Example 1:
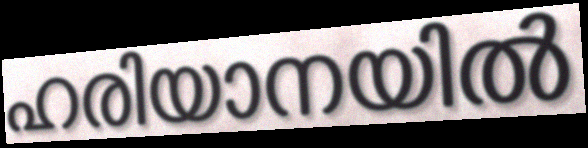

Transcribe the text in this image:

ഹരിയാനയിൽ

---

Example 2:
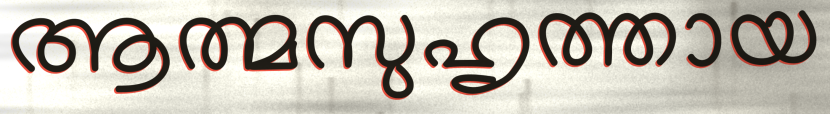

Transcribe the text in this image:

ആത്മസുഹൃത്തായ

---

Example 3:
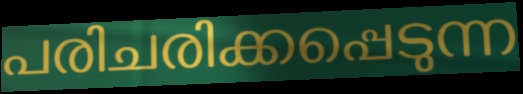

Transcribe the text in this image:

പരിചരിക്കപ്പെടുന്ന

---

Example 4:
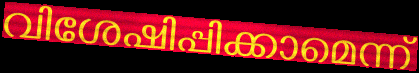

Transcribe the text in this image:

വിശേഷിപ്പിക്കാമെന്ന്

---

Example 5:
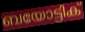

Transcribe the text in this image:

ബയോട്ടിക്